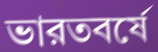
ভারতবর্ষে